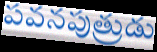
పవనపుత్రుడు